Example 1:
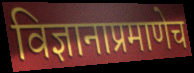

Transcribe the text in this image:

विज्ञानाप्रमाणेच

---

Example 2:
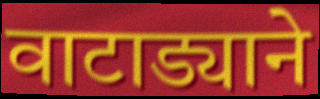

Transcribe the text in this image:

वाटाड्याने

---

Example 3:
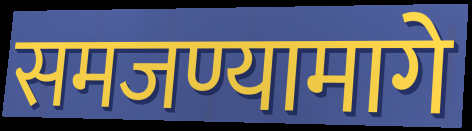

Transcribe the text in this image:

समजण्यामागे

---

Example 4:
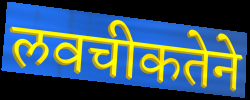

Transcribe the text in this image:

लवचीकतेने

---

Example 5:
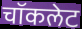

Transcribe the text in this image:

चॉकलेट